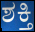
ಶಕ್ತಿ